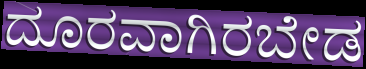
ದೂರವಾಗಿರಬೇಡ